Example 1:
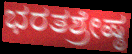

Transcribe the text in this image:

ಭರತಶ್ರೇಷ್ಠ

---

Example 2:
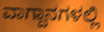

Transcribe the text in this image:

ವಾಗ್ದಾನಗಳಲ್ಲಿ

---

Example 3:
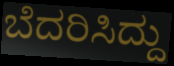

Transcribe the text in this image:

ಬೆದರಿಸಿದ್ದು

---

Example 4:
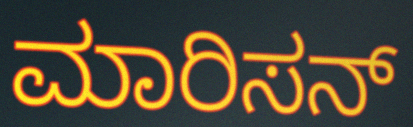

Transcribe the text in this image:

ಮಾರಿಸನ್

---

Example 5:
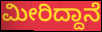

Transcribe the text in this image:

ಮೀರಿದ್ದಾನೆ